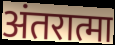
अंतरात्मा